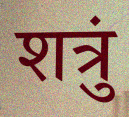
शत्रुं